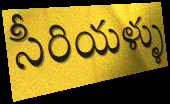
సీరియళ్ళు